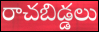
రాచబిడ్డలు